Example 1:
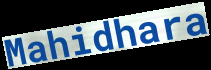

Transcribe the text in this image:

Mahidhara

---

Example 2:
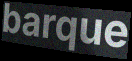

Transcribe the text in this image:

barque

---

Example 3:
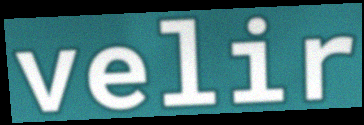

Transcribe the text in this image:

velir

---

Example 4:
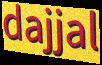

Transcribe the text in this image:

dajjal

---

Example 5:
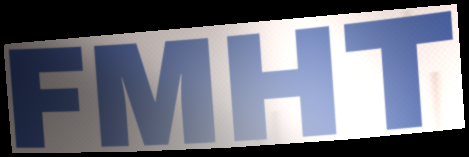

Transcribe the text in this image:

FMHT